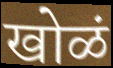
खोळं